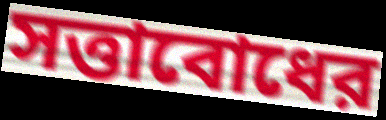
সত্তাবোধের